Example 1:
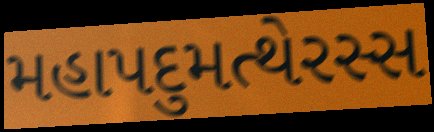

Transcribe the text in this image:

મહાપદુમત્થેરસ્સ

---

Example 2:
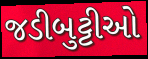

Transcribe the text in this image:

જડીબુટ્ટીઓ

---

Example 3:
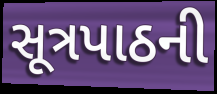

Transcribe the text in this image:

સૂત્રપાઠની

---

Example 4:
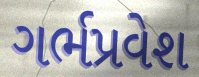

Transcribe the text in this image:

ગર્ભપ્રવેશ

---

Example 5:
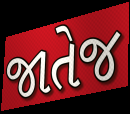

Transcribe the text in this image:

જાતેજ